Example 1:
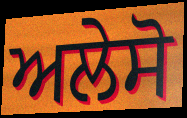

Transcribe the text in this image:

ਅਲੇਸੋ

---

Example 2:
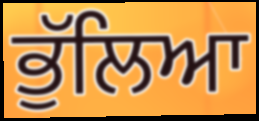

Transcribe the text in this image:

ਭੁੱਲਿਆ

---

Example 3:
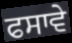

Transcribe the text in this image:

ਫਸਾਵੇ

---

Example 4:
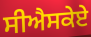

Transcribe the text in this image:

ਸੀਐਸਕੇਏ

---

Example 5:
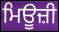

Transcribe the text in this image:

ਮਿਊਜ਼ੀ